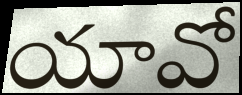
యావో